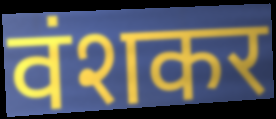
वंशकर